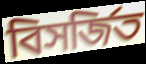
বিসর্জিত